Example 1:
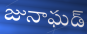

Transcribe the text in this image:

జునాఘడ్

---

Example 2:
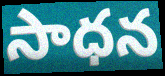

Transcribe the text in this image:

సాధన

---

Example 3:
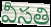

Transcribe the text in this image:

వీసతి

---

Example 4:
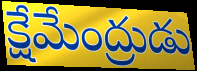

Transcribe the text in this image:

క్షేమేంద్రుడు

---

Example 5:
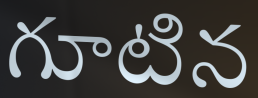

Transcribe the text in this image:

గూటిన